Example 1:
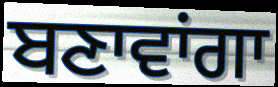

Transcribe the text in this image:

ਬਣਾਵਾਂਗਾ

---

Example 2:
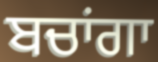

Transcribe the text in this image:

ਬਚਾਂਗਾ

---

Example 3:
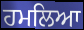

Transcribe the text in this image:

ਹਮਲਿਆ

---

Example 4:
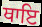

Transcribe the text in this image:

ਥਾਇ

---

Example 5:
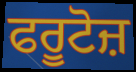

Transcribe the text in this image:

ਫਰੂਟੋਜ਼